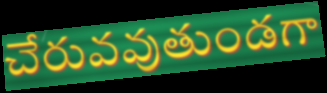
చేరువవుతుండగా